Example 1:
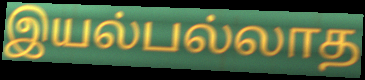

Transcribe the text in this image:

இயல்பல்லாத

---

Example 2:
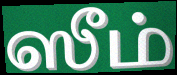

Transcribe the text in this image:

ஸீம்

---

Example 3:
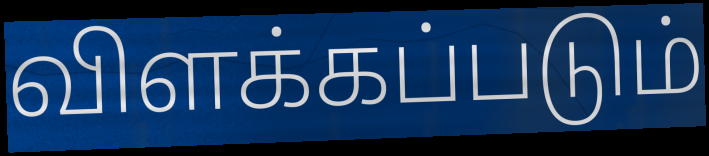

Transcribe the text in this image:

விளக்கப்படும்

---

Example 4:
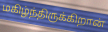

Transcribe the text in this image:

மகிழ்ந்திருக்கிறான்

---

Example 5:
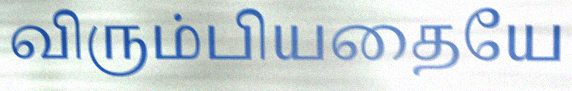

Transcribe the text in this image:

விரும்பியதையே